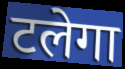
टलेगा